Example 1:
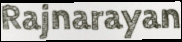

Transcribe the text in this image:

Rajnarayan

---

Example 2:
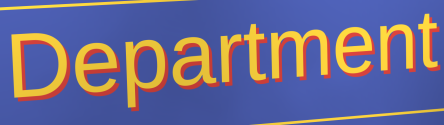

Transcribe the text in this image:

Department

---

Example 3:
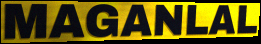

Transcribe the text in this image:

MAGANLAL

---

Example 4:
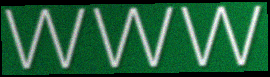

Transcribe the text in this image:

www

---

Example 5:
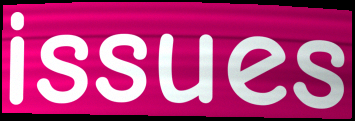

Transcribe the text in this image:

issues